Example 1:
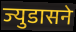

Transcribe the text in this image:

ज्युडासने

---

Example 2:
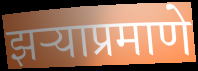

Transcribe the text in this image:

झऱ्याप्रमाणे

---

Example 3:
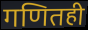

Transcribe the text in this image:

गणितही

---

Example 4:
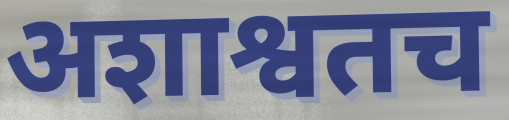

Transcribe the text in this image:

अशाश्वतच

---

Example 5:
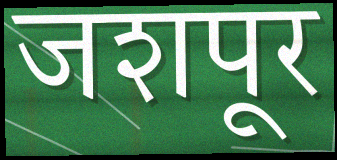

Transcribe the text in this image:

जशपूर